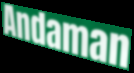
Andaman